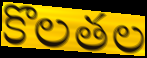
కొలతల